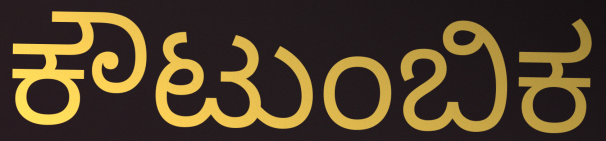
ಕೌಟುಂಬಿಕ